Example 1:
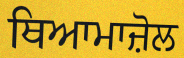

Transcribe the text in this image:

ਥਿਆਮਾਜ਼ੋਲ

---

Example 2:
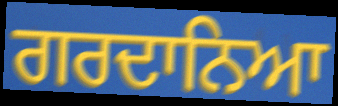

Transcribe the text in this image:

ਗਰਦਾਨਿਆ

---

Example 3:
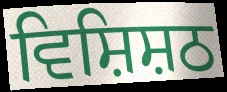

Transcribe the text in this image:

ਵਿਸ਼ਿਸ਼ਠ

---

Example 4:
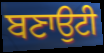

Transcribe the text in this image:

ਬਣਾਉਟੀ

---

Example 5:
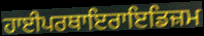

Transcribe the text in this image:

ਹਾਈਪਰਥਾਇਰਾਇਡਿਜ਼ਮ